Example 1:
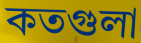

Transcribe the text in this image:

কতগুলা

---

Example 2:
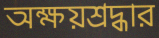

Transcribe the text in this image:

অক্ষয়শ্রদ্ধার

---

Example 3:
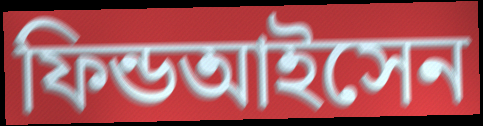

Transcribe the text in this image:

ফিন্ডআইসেন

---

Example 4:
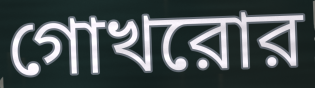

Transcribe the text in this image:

গোখরোর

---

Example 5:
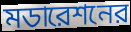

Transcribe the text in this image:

মডারেশনের